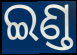
ଇଣ୍ଡ